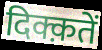
दिक्क़तें